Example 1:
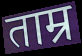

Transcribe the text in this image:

ताम्र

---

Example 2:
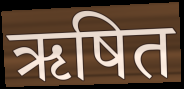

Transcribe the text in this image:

ऋषित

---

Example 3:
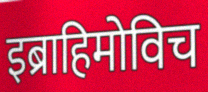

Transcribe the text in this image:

इब्राहिमोविच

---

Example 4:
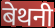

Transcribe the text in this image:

बेथनी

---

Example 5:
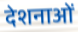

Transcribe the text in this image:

देशनाओं